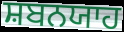
ਸ਼ਬਨਯਾਹ